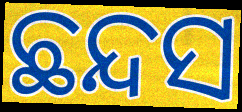
ଛନ୍ଦସ